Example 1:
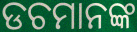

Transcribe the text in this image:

ଡଚମାନଙ୍କ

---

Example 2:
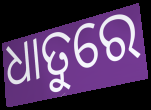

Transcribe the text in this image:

ଧାତୁରେ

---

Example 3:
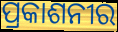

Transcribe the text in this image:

ପ୍ରକାଶନୀର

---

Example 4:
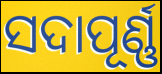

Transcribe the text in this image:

ସଦାପୂର୍ଣ୍ଣ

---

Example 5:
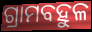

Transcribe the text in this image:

ଗ୍ରାମବହୁଳ